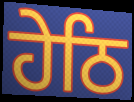
ਹੇਠਿ